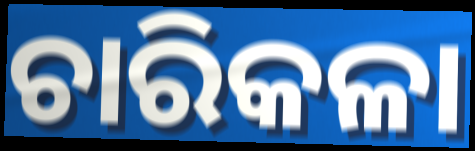
ଚାରିକଳା